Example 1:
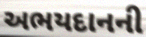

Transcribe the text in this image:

અભયદાનની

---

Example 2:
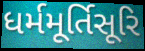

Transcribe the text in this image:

ધર્મમૂર્તિસૂરિ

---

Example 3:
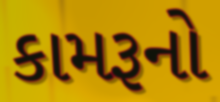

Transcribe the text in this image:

કામરૂનો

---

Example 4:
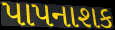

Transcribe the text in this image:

પાપનાશક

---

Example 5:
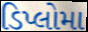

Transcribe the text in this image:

ડિપ્લોમા